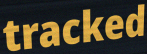
tracked